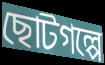
ছোটগল্পে